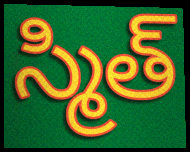
స్మిత్